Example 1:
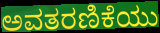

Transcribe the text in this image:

ಅವತರಣಿಕೆಯು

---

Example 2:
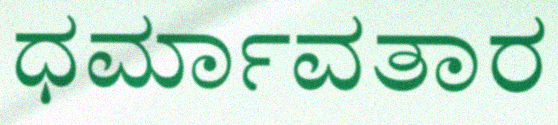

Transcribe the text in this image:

ಧರ್ಮಾವತಾರ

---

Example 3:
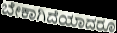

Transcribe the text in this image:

ಬೇಕಾಗಿದೆಯಾದರೂ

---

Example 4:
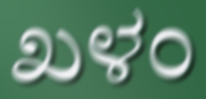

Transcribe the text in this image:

ಖಳಂ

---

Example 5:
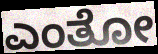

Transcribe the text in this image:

ಎಂತೋ